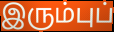
இரும்புப்